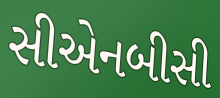
સીએનબીસી